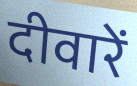
दीवारें